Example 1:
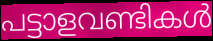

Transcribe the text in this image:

പട്ടാളവണ്ടികൾ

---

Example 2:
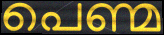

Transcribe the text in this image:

പെണ്മ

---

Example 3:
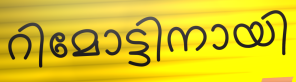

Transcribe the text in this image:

റിമോട്ടിനായി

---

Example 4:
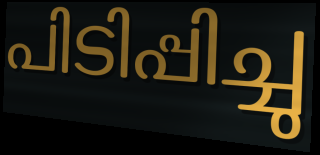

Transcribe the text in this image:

പിടിപ്പിച്ചു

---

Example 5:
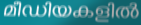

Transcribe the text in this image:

മീഡിയകളിൽ